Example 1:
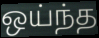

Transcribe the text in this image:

ஒய்ந்த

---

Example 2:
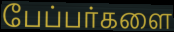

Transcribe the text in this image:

பேப்பர்களை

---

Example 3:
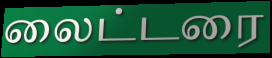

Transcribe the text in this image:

லைட்டரை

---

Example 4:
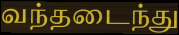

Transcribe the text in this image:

வந்தடைந்து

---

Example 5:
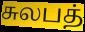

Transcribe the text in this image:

சுலபத்